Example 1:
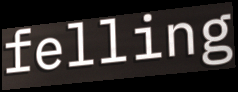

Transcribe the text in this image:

felling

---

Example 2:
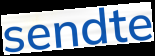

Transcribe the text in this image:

sendte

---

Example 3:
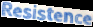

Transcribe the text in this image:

Resistence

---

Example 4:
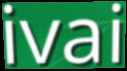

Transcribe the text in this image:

ivai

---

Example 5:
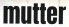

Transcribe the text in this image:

mutter